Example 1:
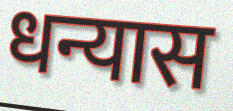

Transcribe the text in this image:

धन्यास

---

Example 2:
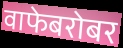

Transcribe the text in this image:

वाफेबरोबर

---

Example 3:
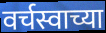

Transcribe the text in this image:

वर्चस्वाच्या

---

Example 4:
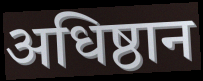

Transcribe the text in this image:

अधिष्ठान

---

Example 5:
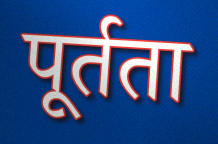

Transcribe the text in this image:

पूर्तता